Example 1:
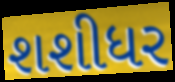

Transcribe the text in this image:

શશીધર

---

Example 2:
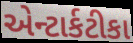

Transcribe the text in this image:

એન્ટાર્કટીકા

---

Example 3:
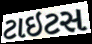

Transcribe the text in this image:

ટાઇટસ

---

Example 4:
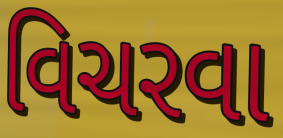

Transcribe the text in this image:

વિચરવા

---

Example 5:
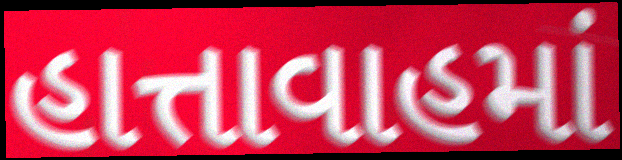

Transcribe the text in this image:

હાત્તાવાહમાં